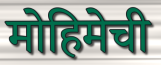
मोहिमेची